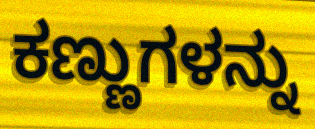
ಕಣ್ಣುಗಳನ್ನು